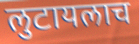
लुटायलाच